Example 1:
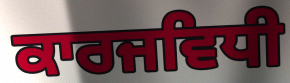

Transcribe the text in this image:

ਕਾਰਜਵਿਧੀ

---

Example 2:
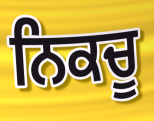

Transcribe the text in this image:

ਨਿਕਚੂ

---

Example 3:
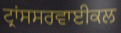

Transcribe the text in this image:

ਟ੍ਰਾਂਸਸਰਵਾਈਕਲ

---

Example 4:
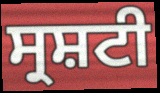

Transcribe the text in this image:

ਸ੍ਰਸ਼ਟੀ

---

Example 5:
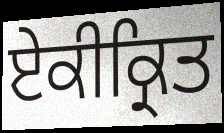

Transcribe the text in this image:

ਏਕੀਕ੍ਰਿਤ